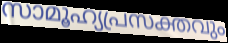
സാമൂഹ്യപ്രസക്തവും